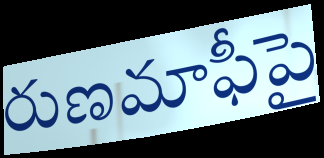
రుణమాఫీపై